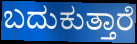
ಬದುಕುತ್ತಾರೆ